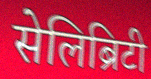
सेलिब्रिटी